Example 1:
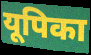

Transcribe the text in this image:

यूपिका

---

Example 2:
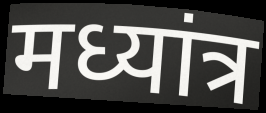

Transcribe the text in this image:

मध्यांत्र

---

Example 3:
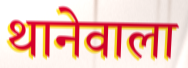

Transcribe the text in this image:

थानेवाला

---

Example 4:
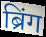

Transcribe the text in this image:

ब्रिंग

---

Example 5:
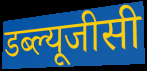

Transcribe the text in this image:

डब्ल्यूजीसी